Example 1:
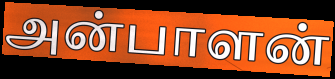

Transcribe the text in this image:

அன்பாளன்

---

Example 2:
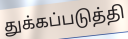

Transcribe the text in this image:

துக்கப்படுத்தி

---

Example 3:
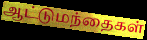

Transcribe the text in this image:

ஆட்டுமந்தைகள்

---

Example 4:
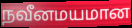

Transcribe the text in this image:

நவீனமயமான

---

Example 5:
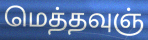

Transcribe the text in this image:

மெத்தவுஞ்